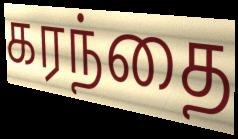
கரந்தை